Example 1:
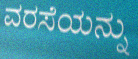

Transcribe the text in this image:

ವರಸೆಯನ್ನು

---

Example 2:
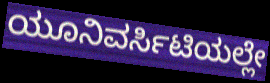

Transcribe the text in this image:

ಯೂನಿವರ್ಸಿಟಿಯಲ್ಲೇ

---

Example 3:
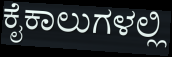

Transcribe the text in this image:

ಕೈಕಾಲುಗಳಲ್ಲಿ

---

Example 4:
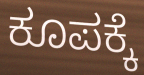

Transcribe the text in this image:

ಕೂಪಕ್ಕೆ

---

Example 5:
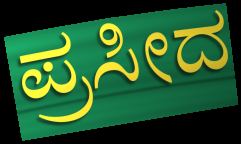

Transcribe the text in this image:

ಪ್ರಸೀದ